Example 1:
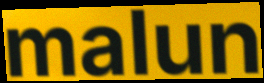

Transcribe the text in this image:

malun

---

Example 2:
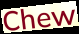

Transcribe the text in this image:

Chew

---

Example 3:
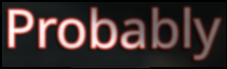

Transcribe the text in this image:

Probably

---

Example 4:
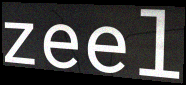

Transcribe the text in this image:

zeel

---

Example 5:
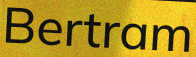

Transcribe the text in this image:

Bertram